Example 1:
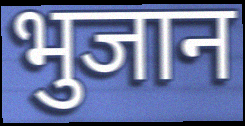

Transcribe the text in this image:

भुजान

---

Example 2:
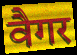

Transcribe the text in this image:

वैगर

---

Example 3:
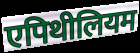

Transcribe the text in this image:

एपिथीलियम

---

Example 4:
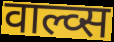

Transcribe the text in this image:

वाल्व्स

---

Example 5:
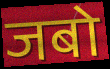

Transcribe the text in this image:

जबो